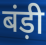
बंड़ी